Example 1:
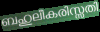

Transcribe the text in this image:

ബഹുലീകരിസ്സതി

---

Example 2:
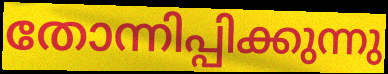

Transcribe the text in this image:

തോന്നിപ്പിക്കുന്നു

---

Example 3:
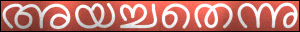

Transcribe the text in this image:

അയച്ചതെന്നു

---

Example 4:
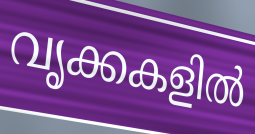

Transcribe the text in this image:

വൃക്കകളിൽ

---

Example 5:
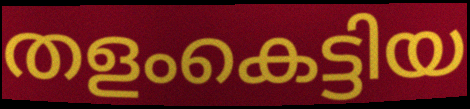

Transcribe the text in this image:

തളംകെട്ടിയ